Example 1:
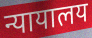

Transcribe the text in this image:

न्यायालय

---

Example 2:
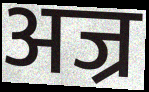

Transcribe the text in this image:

अज्र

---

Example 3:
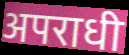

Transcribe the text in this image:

अपराधी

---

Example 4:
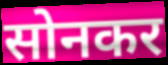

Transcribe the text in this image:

सोनकर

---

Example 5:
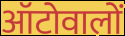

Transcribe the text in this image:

ऑटोवालों